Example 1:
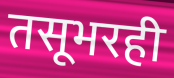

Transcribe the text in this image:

तसूभरही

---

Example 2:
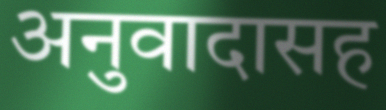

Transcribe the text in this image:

अनुवादासह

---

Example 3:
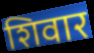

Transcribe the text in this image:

शिवार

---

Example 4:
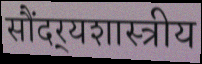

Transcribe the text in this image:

सौंदर्यशास्त्रीय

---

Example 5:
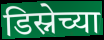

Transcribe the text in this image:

डिस्नेच्या